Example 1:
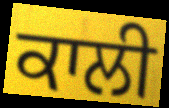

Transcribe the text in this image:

ਕਾਲੀ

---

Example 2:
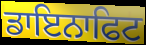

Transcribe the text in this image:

ਡਾਇਨਾਫਿਟ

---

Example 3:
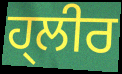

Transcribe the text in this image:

ਹ੍ਲੀਰ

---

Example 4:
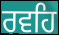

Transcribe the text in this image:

ਰਵਹਿ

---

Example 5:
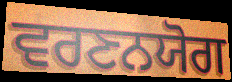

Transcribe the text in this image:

ਵਰਣਨਯੋਗ